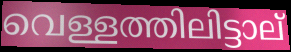
വെള്ളത്തിലിട്ടാല്